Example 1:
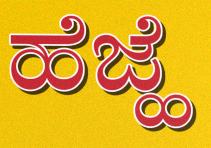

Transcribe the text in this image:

ಹೆಜ್ಹೆ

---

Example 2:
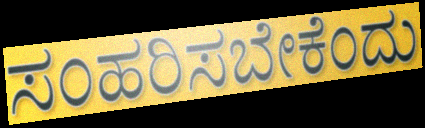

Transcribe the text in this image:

ಸಂಹರಿಸಬೇಕೆಂದು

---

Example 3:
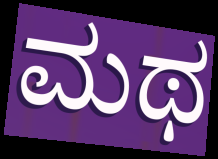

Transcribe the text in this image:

ಮಥ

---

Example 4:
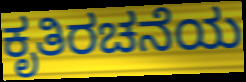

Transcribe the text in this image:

ಕೃತಿರಚನೆಯ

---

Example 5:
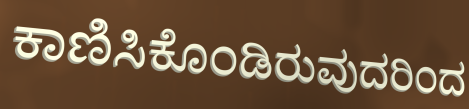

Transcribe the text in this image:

ಕಾಣಿಸಿಕೊಂಡಿರುವುದರಿಂದ